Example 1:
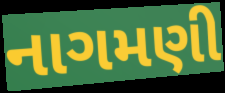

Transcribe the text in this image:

નાગમણી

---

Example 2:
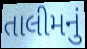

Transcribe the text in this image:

તાલીમનું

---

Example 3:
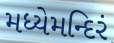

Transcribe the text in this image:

મધ્યેમન્દિરં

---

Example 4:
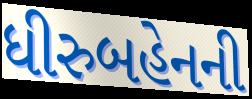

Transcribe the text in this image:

ધીરુબહેનની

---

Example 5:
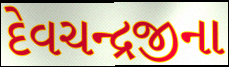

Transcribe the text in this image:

દેવચન્દ્રજીના